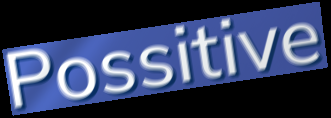
Possitive